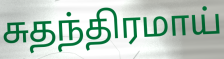
சுதந்திரமாய்